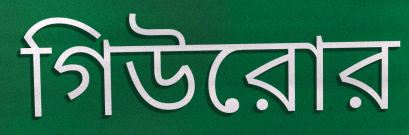
গিউরোর